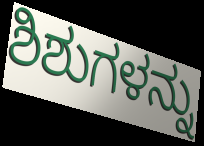
ಶಿಶುಗಳನ್ನು